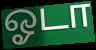
ஓடா